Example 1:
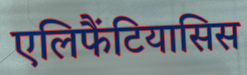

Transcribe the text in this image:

एलिफैंटियासिस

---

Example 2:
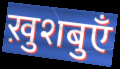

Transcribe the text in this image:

ख़ुशबुएँ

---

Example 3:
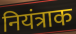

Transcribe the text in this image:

नियंत्राक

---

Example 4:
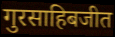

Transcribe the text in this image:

गुरसाहिबजीत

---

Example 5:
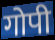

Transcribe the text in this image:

गोपी